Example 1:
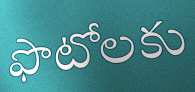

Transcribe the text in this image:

ఫొటోలకు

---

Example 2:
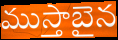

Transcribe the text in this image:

ముస్తాబైన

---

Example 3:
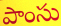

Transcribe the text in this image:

పాంసు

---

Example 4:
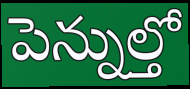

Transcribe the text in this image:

పెన్నుల్తో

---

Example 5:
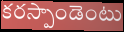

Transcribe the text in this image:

కరస్పాండెంటు